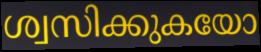
ശ്വസിക്കുകയോ